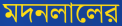
মদনলালের